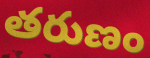
తరుణం